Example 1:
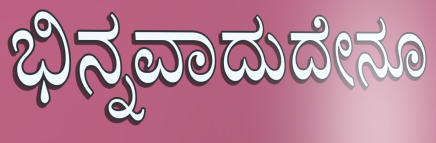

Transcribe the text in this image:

ಭಿನ್ನವಾದುದೇನೂ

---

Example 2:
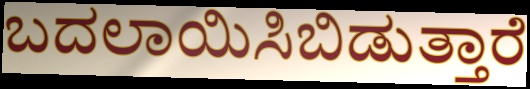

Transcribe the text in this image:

ಬದಲಾಯಿಸಿಬಿಡುತ್ತಾರೆ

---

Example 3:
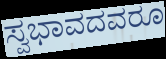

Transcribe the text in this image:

ಸ್ವಭಾವದವರೂ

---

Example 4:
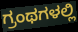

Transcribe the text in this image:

ಗ್ರಂಥಗಳಲ್ಲಿ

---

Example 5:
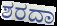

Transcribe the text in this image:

ಶರದಾ